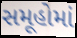
સમૂહોમાં